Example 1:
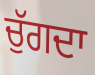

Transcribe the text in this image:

ਚੁੱਗਦਾ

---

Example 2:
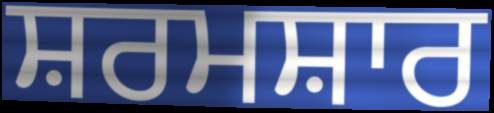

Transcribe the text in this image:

ਸ਼ਰਮਸ਼ਾਰ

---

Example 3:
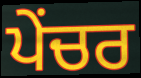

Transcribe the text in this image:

ਪੇਂਚਰ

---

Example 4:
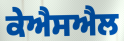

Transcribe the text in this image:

ਕੇਐਸਐਲ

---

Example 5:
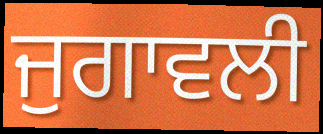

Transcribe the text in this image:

ਜੁਗਾਵਲੀ